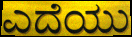
ಎದೆಯು